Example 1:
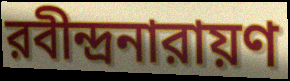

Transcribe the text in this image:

রবীন্দ্রনারায়ণ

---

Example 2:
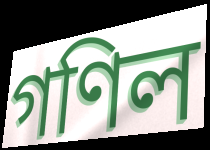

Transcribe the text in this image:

গণিল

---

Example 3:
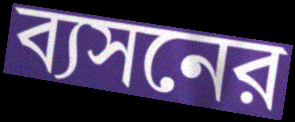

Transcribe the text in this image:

ব্যসনের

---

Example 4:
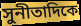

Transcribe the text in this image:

সুনীতাদিকে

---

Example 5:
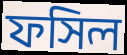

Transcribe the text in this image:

ফসিল